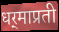
धर्माप्रती